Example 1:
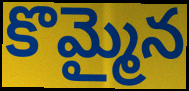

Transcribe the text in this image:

కొమ్మైన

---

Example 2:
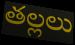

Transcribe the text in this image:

తల్లలు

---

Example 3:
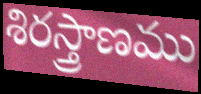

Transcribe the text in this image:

శిరస్త్రాణము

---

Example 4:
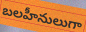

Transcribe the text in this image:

బలహీనులుగా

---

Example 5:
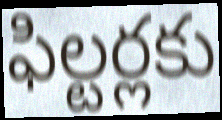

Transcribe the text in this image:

ఫిల్టర్లకు